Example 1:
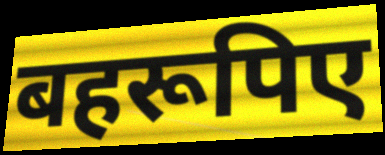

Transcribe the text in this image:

बहरूपिए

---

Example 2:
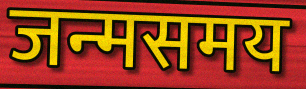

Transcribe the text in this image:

जन्मसमय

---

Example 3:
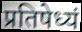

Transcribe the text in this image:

प्रतिषेध्यं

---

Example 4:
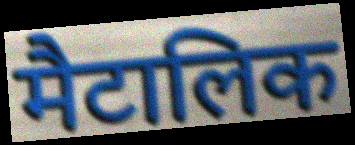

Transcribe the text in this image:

मैटालिक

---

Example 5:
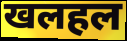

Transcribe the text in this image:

खलहल